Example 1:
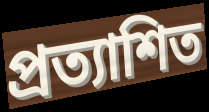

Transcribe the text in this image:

প্রত্যাশিত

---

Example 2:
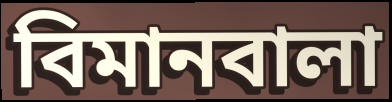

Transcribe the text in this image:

বিমানবালা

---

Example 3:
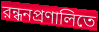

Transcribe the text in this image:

রন্ধনপ্রণালিতে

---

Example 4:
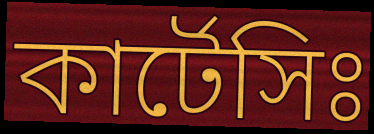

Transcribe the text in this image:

কার্টেসিঃ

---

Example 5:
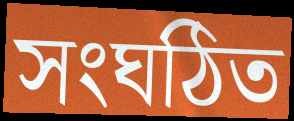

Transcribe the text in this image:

সংঘঠিত